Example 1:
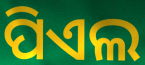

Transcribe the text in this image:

ପିଏଲ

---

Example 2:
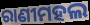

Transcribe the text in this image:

ରାଣୀମହଲ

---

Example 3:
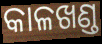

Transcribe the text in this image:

କାଳଖଣ୍ଡ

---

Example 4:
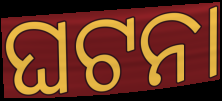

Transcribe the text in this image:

ଘଟନା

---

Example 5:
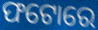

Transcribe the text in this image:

ଫଟୋରେ